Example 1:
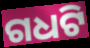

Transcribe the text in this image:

ଗଧଟି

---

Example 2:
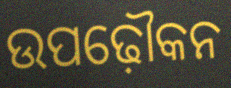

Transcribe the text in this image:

ଉପଢ଼ୌକନ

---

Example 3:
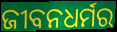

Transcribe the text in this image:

ଜୀବନଧର୍ମର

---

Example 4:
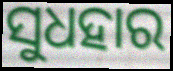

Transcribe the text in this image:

ସୁଧହାର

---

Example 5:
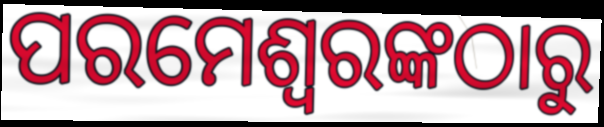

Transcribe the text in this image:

ପରମେଶ୍ଵରଙ୍କଠାରୁ